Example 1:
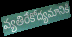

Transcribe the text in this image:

వ్యతిరేకోద్యమానికి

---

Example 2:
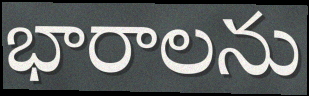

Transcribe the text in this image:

భారాలను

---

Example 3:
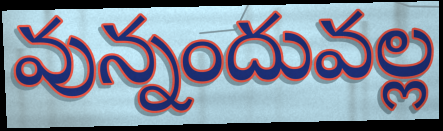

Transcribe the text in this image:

వున్నందువల్ల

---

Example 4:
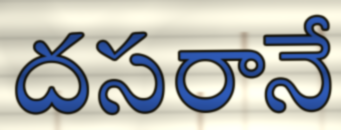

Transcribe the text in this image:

దసరానే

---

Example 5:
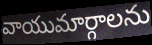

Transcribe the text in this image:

వాయుమార్గాలను